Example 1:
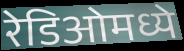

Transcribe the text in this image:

रेडिओमध्ये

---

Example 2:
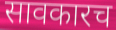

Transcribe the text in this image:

सावकारच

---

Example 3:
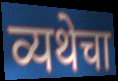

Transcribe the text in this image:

व्यथेचा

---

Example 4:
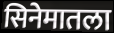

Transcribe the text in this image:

सिनेमातला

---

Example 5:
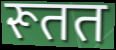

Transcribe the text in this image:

रूतत